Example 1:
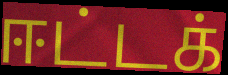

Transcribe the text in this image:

ஈட்டக்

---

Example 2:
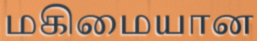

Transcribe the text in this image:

மகிமையான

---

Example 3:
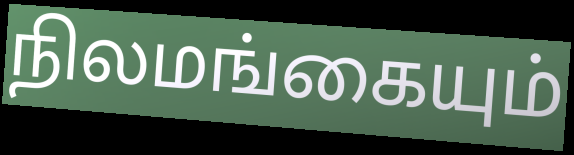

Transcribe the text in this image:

நிலமங்கையும்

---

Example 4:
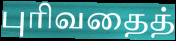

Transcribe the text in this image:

புரிவதைத்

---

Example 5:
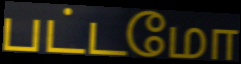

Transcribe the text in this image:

பட்டமோ